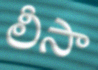
లీసా